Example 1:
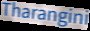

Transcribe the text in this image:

Tharangini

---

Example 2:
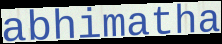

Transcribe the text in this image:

abhimatha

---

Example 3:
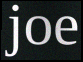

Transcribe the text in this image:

joe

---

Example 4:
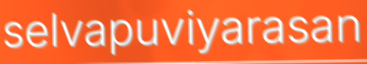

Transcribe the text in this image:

selvapuviyarasan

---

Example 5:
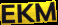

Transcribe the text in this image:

EKM